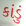
કાંડું